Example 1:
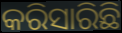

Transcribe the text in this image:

କରିସାରିଛି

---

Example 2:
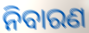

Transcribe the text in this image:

ନିବାରଣ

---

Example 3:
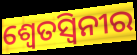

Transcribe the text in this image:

ଶ୍ୱେତସ୍ୱିନୀର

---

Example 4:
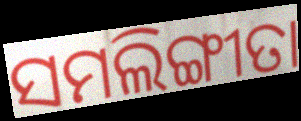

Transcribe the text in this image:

ସମଲିଙ୍ଗୀତା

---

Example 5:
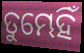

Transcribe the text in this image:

ତୁମ୍ଭେହିଁ